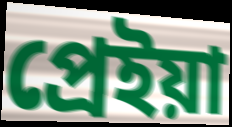
প্রেইয়া